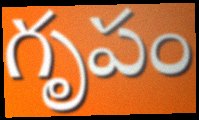
గృపం